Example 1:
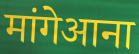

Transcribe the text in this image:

मांगेआना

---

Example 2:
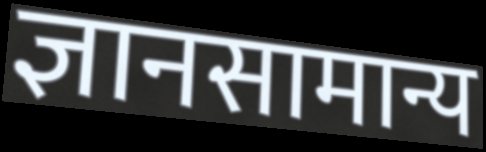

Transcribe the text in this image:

ज्ञानसामान्य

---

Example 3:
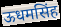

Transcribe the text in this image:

ऊधमसिंह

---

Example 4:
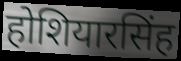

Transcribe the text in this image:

होशियारसिंह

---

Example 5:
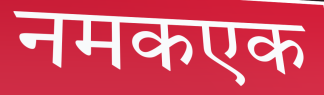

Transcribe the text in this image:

नमकएक